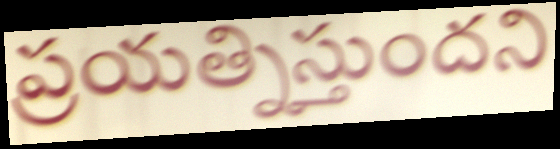
ప్రయత్నిస్తుందని